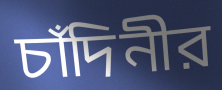
চাঁদিনীর